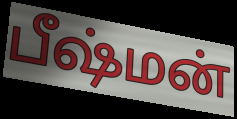
பீஷ்மன்